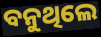
ବନୁଥିଲେ